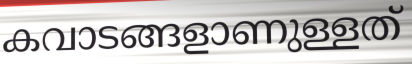
കവാടങ്ങളാണുള്ളത്